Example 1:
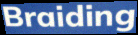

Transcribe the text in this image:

Braiding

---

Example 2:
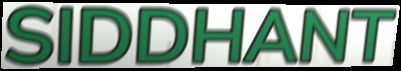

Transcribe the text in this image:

SIDDHANT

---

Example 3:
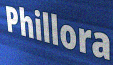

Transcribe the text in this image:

Phillora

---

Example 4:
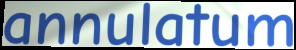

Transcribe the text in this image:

annulatum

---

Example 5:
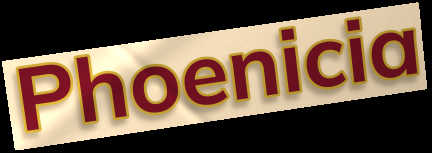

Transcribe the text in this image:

Phoenicia